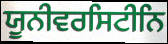
ਯੂਨੀਵਰਸਿਟੀਨਿ